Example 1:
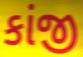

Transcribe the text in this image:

કાંજી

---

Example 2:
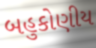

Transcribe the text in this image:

બહુકોણીય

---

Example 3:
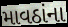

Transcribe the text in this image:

માવઠાંના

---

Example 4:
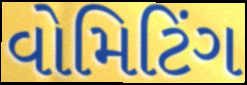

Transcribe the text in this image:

વોમિટિંગ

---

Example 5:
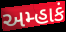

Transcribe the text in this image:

અમ્હાકં